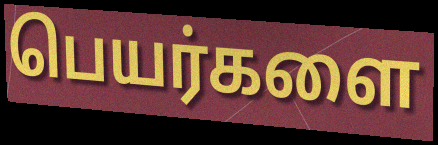
பெயர்களை